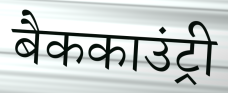
बैककाउंट्री